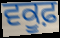
ਵਕੂਫ਼